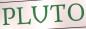
PLUTO